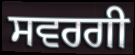
ਸਵਰਗੀ